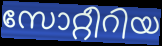
സോറ്റീറിയ